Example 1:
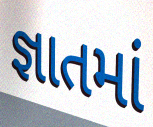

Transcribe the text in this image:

જ્ઞાતમાં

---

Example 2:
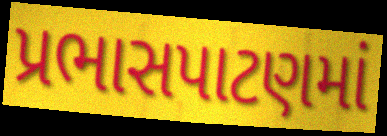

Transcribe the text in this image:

પ્રભાસપાટણમાં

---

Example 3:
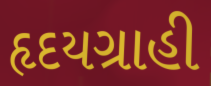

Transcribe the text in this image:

હૃદયગ્રાહી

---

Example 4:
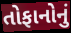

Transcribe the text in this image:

તોફાનોનું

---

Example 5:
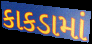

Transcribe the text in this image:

કાકડામાં